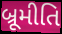
બ્રૂમીતિ